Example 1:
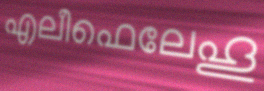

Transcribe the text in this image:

എലീഫെലേഹൂ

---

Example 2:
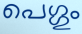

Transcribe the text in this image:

പെഗ്ഗും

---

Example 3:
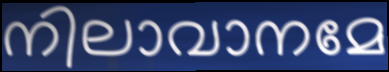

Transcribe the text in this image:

നിലാവാനമേ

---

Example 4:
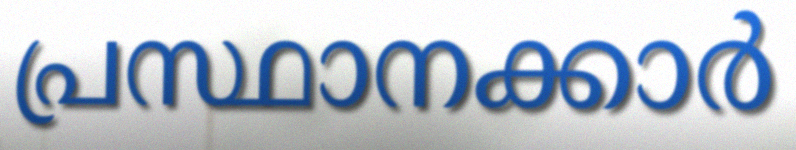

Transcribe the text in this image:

പ്രസ്ഥാനക്കാർ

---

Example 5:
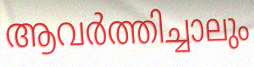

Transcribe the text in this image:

ആവർത്തിച്ചാലും